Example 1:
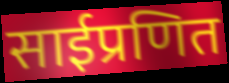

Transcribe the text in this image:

साईप्रणित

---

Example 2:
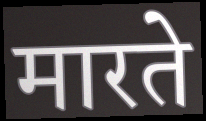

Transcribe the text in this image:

मारते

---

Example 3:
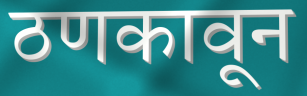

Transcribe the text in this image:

ठणकावून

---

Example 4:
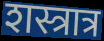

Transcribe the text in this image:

शस्त्रात्र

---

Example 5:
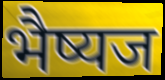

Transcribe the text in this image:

भैष्यज